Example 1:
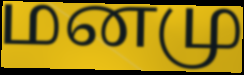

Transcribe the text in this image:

மனமு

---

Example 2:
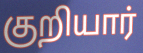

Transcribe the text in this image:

குறியார்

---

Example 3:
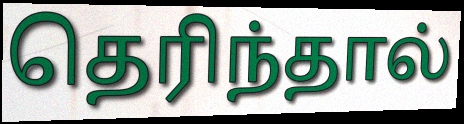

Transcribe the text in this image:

தெரிந்தால்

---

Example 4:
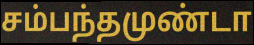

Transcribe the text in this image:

சம்பந்தமுண்டா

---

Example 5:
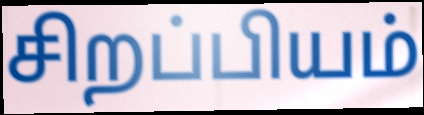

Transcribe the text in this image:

சிறப்பியம்